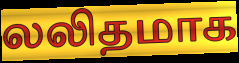
லலிதமாக